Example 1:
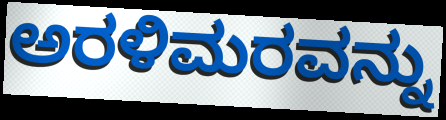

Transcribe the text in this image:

ಅರಳಿಮರವನ್ನು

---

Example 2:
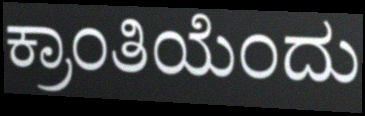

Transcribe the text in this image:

ಕ್ರಾಂತಿಯೆಂದು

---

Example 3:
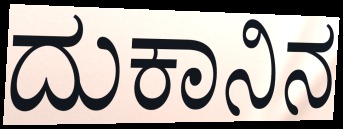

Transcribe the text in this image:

ದುಕಾನಿನ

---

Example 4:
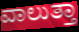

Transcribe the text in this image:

ವಾಲುತ್ತಾ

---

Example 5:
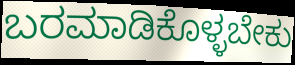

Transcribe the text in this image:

ಬರಮಾಡಿಕೊಳ್ಳಬೇಕು